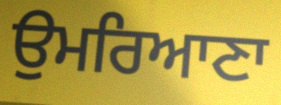
ਉਮਰਿਆਣਾ